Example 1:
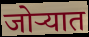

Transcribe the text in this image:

जोऱ्यात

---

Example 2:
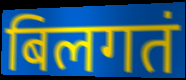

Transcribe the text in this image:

बिलगतं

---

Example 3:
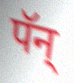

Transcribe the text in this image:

पॅन्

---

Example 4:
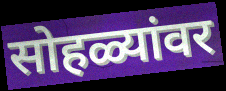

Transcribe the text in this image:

सोहळ्यांवर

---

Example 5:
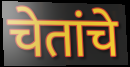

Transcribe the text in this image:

चेतांचे